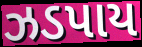
ઝડપાય